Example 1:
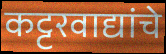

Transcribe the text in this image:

कट्टरवाद्यांचे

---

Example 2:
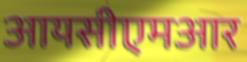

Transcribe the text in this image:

आयसीएमआर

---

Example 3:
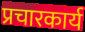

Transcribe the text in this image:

प्रचारकार्य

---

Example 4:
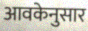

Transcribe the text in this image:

आवकेनुसार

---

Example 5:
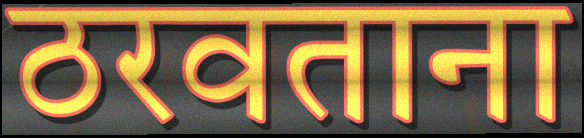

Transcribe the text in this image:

ठरवताना